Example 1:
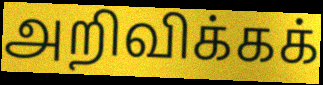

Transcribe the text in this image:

அறிவிக்கக்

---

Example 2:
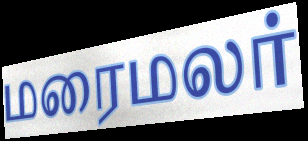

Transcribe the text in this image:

மரைமலர்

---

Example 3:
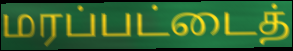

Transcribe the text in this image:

மரப்பட்டைத்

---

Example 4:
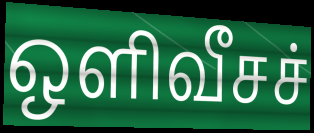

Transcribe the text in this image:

ஒளிவீசச்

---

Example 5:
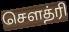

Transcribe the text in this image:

சௌத்ரி